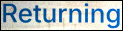
Returning